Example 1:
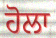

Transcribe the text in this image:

ਹੋਲਾ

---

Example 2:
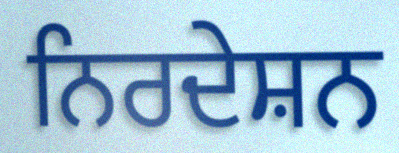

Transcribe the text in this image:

ਨਿਰਦੇਸ਼ਨ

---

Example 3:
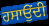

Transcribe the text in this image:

ਹਸਾਉਂਦੀ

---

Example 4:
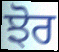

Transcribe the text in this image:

ਝੋਰ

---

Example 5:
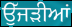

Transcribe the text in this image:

ਉੱਜੜੀਆਂ